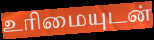
உரிமையுடன்